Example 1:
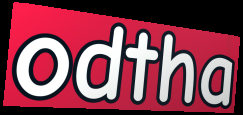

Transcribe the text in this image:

odtha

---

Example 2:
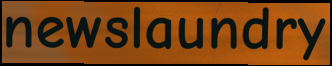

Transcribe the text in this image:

newslaundry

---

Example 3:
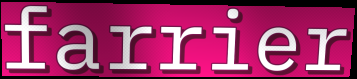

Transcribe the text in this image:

farrier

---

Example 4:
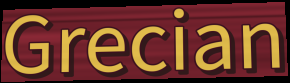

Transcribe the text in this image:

Grecian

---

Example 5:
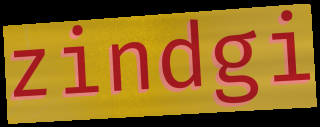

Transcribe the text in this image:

zindgi